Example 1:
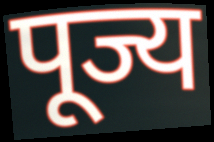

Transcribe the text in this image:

पूज्य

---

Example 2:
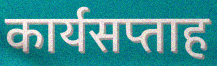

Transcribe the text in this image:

कार्यसप्ताह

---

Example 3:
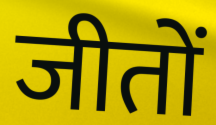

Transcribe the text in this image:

जीतों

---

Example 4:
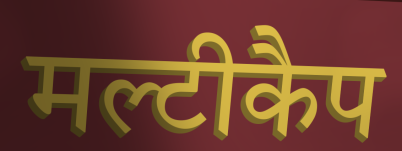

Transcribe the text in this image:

मल्‍टीकैप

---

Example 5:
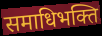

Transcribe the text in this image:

समाधिभक्ति